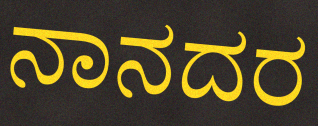
ನಾನದರ